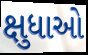
ક્ષુધાઓ